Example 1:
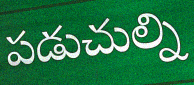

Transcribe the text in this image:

పడుచుల్ని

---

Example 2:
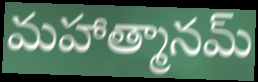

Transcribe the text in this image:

మహాత్మానమ్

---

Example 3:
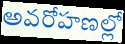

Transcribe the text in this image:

అవరోహణల్లో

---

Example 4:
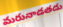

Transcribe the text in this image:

మరునాడతడు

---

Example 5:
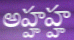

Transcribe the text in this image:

అహ్హహ్హ